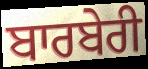
ਬਾਰਬੇਰੀ